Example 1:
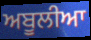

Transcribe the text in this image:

ਅਬੂਲੀਆ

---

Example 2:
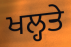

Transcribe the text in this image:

ਖਲ੍ਹਤੇ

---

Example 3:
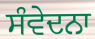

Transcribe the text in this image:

ਸੰਵੇਦਨਾ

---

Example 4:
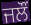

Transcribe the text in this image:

ਜਲੌਂ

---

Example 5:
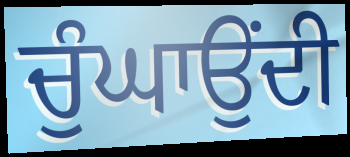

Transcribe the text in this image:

ਚੁੰਘਾਉਂਦੀ